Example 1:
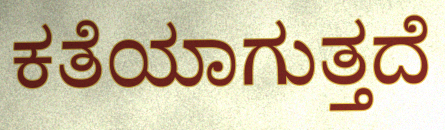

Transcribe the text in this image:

ಕತೆಯಾಗುತ್ತದೆ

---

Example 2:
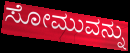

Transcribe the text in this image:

ಸೋಮುವನ್ನು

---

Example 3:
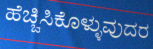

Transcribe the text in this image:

ಹೆಚ್ಚಿಸಿಕೊಳ್ಳುವುದರ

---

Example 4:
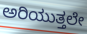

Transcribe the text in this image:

ಅರಿಯುತ್ತಲೇ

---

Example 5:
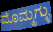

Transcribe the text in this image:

ಮೊಮ್ಮಗ್ಳು